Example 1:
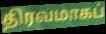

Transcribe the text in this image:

திரவமாகப்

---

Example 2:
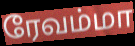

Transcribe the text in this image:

ரேவம்மா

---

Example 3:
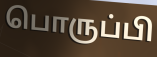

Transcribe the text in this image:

பொருப்பி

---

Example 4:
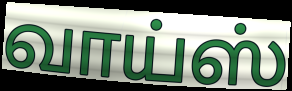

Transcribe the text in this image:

வாய்ஸ்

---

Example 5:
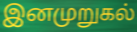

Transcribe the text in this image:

இனமுறுகல்